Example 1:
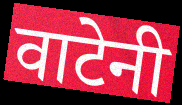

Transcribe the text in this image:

वाटेनी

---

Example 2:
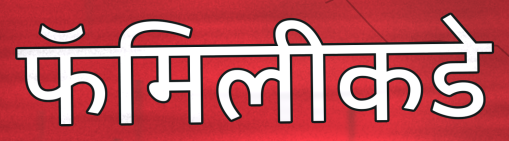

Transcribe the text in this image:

फॅमिलीकडे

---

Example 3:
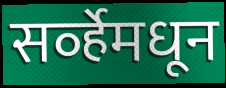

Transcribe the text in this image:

सर्व्हेमधून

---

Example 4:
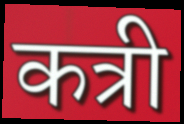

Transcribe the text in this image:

कत्री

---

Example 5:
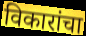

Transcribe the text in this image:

विकारांचा